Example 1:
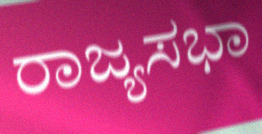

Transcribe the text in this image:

ರಾಜ್ಯಸಭಾ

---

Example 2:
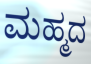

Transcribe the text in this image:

ಮಹ್ಮದ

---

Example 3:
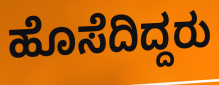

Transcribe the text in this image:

ಹೊಸೆದಿದ್ದರು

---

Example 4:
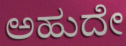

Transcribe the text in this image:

ಅಹುದೇ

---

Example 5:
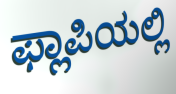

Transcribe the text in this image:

ಫ್ಲಾಪಿಯಲ್ಲಿ